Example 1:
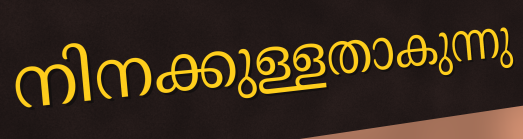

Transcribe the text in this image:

നിനക്കുള്ളതാകുന്നു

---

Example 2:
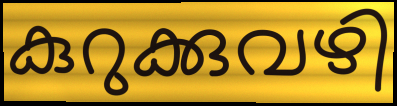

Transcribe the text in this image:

കുറുക്കുവഴി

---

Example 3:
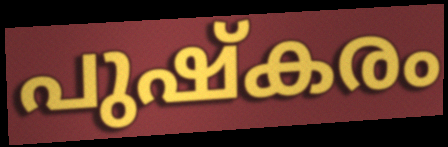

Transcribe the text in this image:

പുഷ്കരം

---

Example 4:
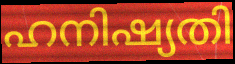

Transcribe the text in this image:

ഹനിഷ്യതി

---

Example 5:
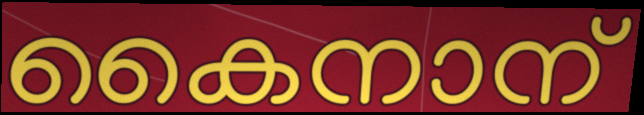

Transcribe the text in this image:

കൈനാന്